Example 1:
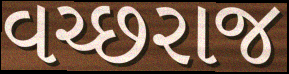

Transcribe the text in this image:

વચ્છરાજ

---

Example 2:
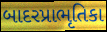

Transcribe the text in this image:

બાદરપ્રાભૃતિકા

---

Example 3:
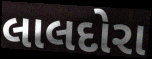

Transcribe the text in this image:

લાલદોરા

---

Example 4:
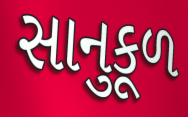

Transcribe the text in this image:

સાનુકૂળ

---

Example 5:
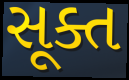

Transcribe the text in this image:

સૂક્ત